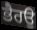
ਭੈਰਉ